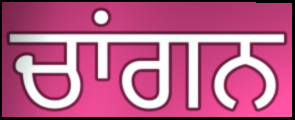
ਚਾਂਗਨ